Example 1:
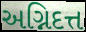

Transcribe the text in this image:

અગ્નિદત્ત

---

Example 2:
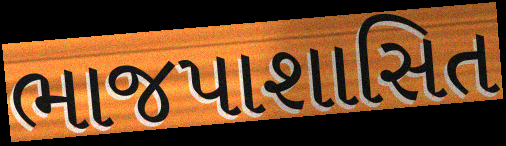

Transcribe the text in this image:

ભાજપાશાસિત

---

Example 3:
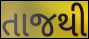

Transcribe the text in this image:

તાજથી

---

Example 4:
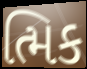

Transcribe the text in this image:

ત્મિક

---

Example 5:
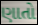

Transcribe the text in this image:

ણાતો